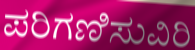
ಪರಿಗಣಿಸುವಿರಿ